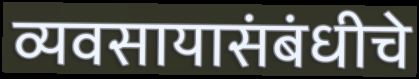
व्यवसायासंबंधीचे